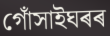
গোঁসাইঘৰৰ